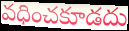
వధించకూడదు